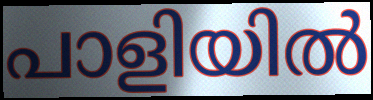
പാളിയിൽ